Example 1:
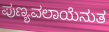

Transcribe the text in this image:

ಪುಣ್ಯವಲಾಯೆನುತ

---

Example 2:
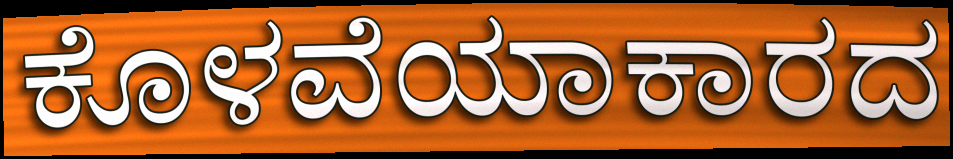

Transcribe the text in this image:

ಕೊಳವೆಯಾಕಾರದ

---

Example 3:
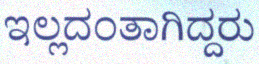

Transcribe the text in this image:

ಇಲ್ಲದಂತಾಗಿದ್ದರು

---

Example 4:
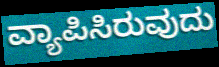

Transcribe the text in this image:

ವ್ಯಾಪಿಸಿರುವುದು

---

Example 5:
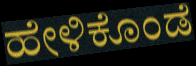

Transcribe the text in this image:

ಹೇಳಿಕೊಂಡೆ